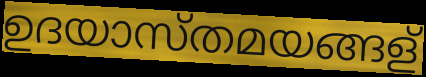
ഉദയാസ്തമയങ്ങള്